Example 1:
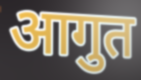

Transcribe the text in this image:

आगुत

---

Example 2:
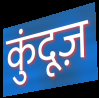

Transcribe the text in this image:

कुंदूज़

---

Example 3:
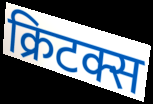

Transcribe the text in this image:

क्रिटक्स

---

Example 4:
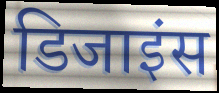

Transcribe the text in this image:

डिजाइंस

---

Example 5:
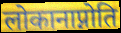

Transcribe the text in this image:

लोकानाप्नोति